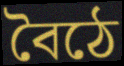
বৈঠে